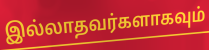
இல்லாதவர்களாகவும்